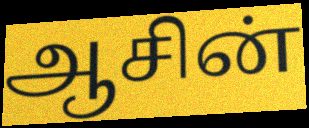
ஆசின்